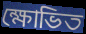
ক্ষোভিত